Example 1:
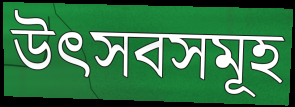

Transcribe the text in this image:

উৎসবসমূহ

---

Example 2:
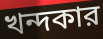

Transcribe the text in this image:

খন্দকার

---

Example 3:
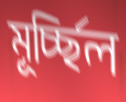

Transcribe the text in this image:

মূর্চ্ছিল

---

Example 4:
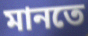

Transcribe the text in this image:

মানতে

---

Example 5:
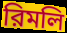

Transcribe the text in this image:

রিমলি